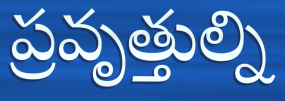
ప్రవృత్తుల్ని